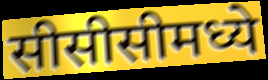
सीसीसीमध्ये